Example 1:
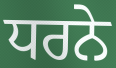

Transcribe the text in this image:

ਧਰਨੇ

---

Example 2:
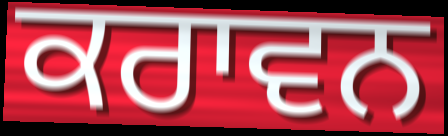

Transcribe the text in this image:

ਕਰਾਵਨ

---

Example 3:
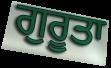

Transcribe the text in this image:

ਗੁਰੂਤਾ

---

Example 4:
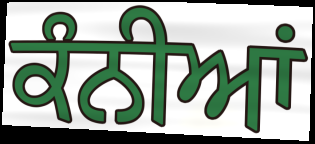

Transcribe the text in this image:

ਕੰਨੀਆਂ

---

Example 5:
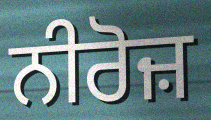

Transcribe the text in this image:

ਨੀਰੋਜ਼